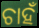
ଚାହଁ